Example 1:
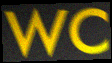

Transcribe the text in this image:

wc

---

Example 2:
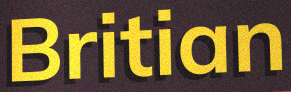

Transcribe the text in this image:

Britian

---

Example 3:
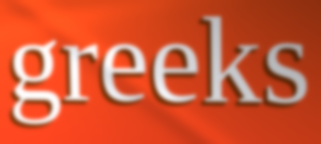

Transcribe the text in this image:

greeks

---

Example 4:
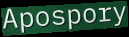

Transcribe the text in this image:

Apospory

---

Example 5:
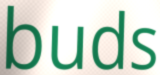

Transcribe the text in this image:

buds